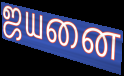
ஜயனை